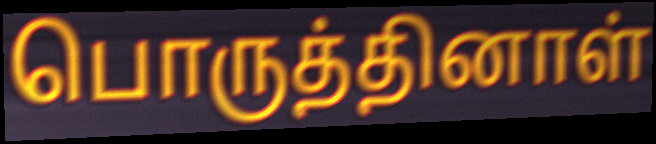
பொருத்தினாள்